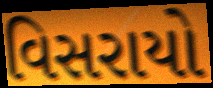
વિસરાયો